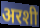
अरशी